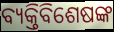
ବ୍ୟକ୍ତିବିଶେଷଙ୍କ